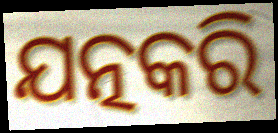
ଯତ୍ନକରି